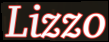
Lizzo